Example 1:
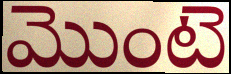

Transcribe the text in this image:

మొంటె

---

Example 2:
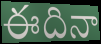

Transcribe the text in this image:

ఈదినా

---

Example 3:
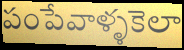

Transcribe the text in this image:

పంపేవాళ్ళకెలా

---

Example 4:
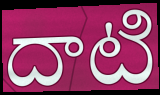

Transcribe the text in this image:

దాటి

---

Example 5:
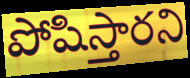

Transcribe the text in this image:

పోషిస్తారని